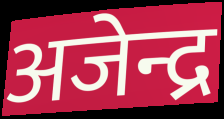
अजेन्द्र